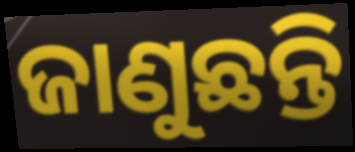
ଜାଣୁଛନ୍ତି